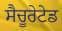
ਸੈਚੂਰੇਟੇਡ